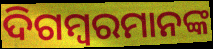
ଦିଗମ୍ବରମାନଙ୍କ